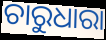
ଚାରୁଧାରା